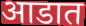
आडात